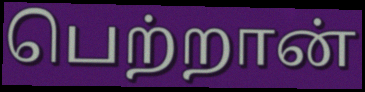
பெற்றான்